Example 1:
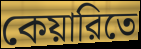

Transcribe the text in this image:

কেয়ারিতে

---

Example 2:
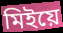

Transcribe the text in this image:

মিইয়ে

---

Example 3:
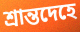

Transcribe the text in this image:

শ্রান্তদেহে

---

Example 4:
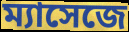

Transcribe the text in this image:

ম্যাসেজে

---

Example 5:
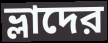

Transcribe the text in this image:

ভ্লাদের